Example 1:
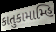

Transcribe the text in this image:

કાતુકામામ્હિ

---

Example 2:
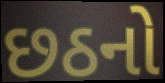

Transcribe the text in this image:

છઠનો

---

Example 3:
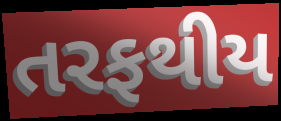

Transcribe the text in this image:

તરફથીય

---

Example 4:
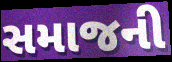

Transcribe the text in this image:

સમાજની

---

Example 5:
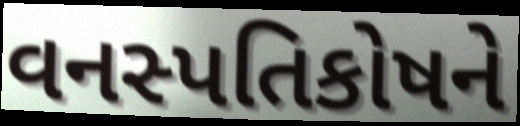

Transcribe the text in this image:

વનસ્પતિકોષને